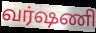
வர்ஷணி